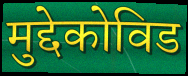
मुद्देकोविड